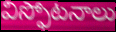
విస్ఫోటనాలు